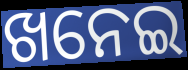
ଖନେଇ